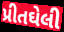
પ્રીતઘેલી